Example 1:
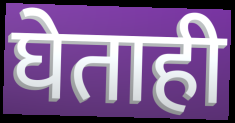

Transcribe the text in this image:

घेताही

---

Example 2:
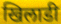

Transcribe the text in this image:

खिलाडी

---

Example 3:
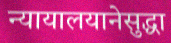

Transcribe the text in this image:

न्यायालयानेसुद्धा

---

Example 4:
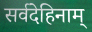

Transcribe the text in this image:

सर्वदेहिनाम्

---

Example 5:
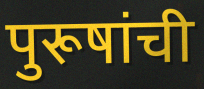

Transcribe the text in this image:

पुरूषांची